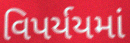
વિપર્યયમાં